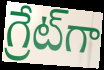
గ్రేట్‌గా